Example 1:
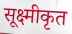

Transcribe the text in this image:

सूक्ष्मीकृत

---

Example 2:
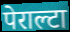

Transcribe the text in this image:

पेराल्टा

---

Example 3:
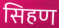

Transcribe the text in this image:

सिहण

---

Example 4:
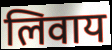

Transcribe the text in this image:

लिवाय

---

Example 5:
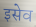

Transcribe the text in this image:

इसेव